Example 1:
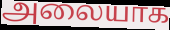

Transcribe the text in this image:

அலையாக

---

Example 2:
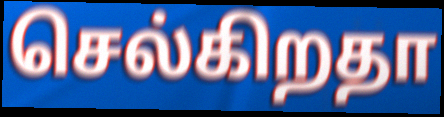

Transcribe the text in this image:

செல்கிறதா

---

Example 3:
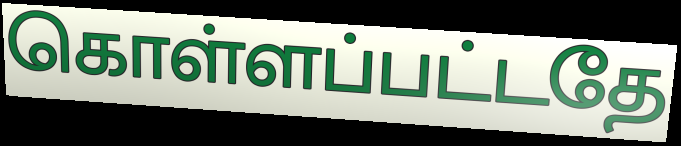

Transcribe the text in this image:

கொள்ளப்பட்டதே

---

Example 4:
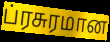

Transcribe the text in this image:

ப்ரசுரமான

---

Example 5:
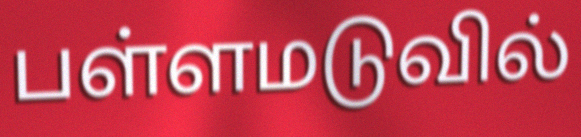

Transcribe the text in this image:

பள்ளமடுவில்